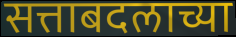
सत्ताबदलाच्या